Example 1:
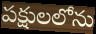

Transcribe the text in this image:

పక్షులలోను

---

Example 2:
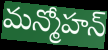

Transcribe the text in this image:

మన్మోహన్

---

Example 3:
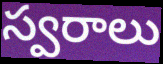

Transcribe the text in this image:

స్వరాలు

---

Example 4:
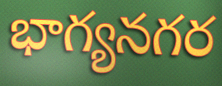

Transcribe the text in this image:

భాగ్యనగర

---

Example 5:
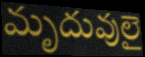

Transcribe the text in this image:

మృదువులై